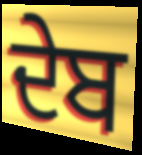
ਦੇਬ